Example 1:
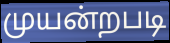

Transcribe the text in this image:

முயன்றபடி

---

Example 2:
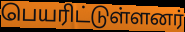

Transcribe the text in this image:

பெயரிட்டுள்ளனர்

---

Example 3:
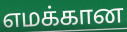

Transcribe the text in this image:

எமக்கான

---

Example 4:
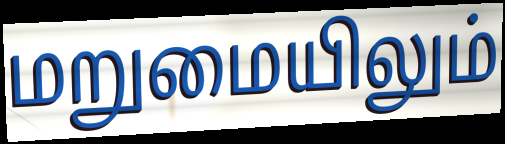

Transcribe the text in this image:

மறுமையிலும்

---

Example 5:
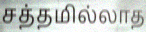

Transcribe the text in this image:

சத்தமில்லாத